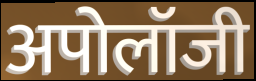
अपोलॉजी